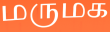
மருமக